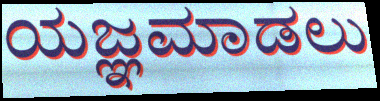
ಯಜ್ಞಮಾಡಲು